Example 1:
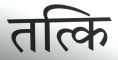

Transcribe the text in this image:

तत्कि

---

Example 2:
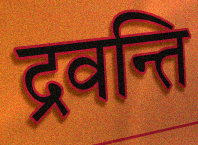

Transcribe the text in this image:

द्रवन्ति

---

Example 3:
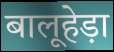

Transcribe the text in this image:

बालूहेड़ा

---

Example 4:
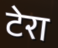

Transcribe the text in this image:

टेरा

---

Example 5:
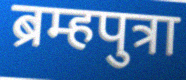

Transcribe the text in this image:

ब्रम्हपुत्रा